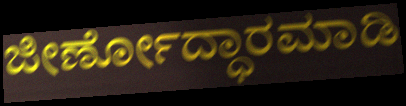
ಜೀರ್ಣೋದ್ಧಾರಮಾಡಿ